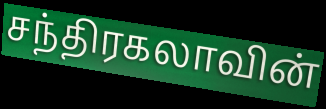
சந்திரகலாவின்